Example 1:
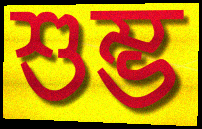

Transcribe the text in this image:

শুম্ভ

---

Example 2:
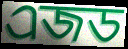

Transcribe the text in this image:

এজড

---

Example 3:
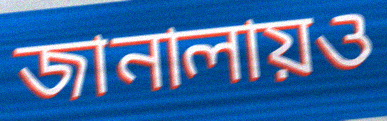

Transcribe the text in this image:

জানালায়ও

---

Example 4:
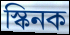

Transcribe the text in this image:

স্কিনক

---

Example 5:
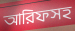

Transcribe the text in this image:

আরিফসহ